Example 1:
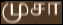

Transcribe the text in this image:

முசா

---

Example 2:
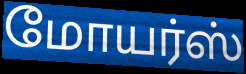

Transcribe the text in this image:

மோயர்ஸ்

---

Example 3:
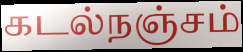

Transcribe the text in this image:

கடல்நஞ்சம்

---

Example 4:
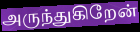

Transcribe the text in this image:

அருந்துகிறேன்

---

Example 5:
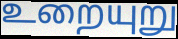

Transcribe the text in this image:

உறையுறு